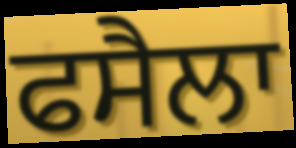
ਫਸੈਲਾ